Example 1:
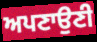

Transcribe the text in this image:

ਅਪਣਾਉਣੀ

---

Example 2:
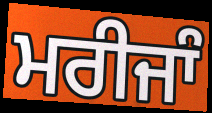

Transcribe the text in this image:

ਮਰੀਜਾੰ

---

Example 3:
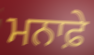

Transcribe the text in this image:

ਮਨਾਫ਼ੇ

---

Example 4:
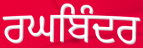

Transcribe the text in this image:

ਰਘਬਿੰਦਰ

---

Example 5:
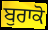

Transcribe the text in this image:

ਬੁਰਾਕੋ